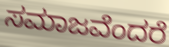
ಸಮಾಜವೆಂದರೆ